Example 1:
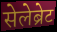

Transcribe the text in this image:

सेलेब्रेट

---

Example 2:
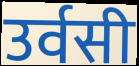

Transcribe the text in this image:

उर्वसी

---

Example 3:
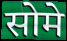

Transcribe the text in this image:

सोमे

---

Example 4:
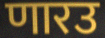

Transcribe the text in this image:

णारउ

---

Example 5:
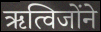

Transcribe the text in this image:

ऋत्विजोंने